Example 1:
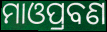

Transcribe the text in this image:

ମାଓପ୍ରବଣ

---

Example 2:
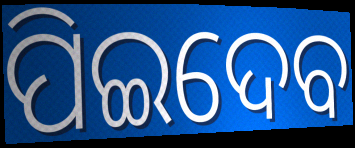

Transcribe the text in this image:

ପିଇଦେବ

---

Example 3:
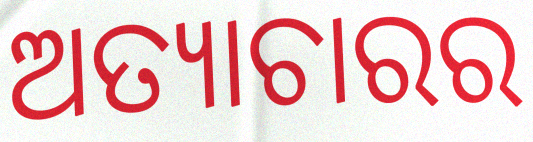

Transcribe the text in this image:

ଅତ୍ୟାଚାରର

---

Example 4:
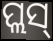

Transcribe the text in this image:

ପ୍ଲସ୍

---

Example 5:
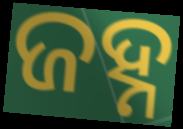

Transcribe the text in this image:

ଜହ୍ନ